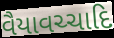
વૈયાવચ્ચાદિ